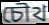
চৌথ